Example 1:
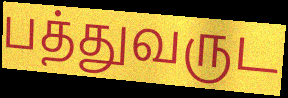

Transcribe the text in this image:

பத்துவருட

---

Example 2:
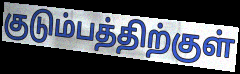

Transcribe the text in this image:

குடும்பத்திற்குள்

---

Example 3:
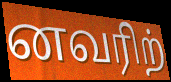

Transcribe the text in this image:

னவரிற்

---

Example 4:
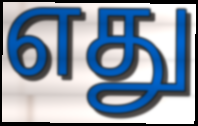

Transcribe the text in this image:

எது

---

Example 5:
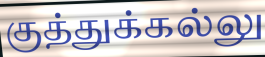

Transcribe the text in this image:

குத்துக்கல்லு